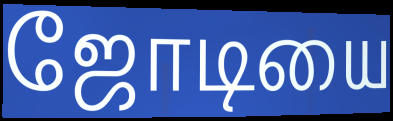
ஜோடியை